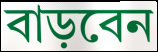
বাড়বেন